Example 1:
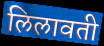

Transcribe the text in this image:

लिलावती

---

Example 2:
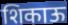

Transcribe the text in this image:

शिकाऊ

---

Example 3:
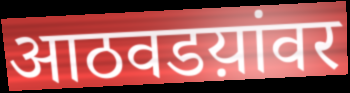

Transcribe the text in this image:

आठवडय़ांवर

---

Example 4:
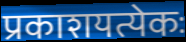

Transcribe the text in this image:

प्रकाशयत्येकः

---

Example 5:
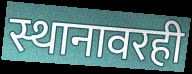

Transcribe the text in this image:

स्थानावरही